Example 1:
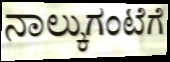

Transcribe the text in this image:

ನಾಲ್ಕುಗಂಟೆಗೆ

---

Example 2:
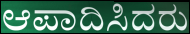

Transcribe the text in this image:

ಆಪಾದಿಸಿದರು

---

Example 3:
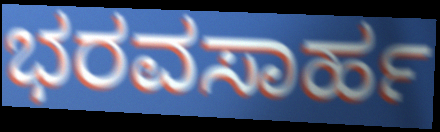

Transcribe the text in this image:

ಭರವಸಾರ್ಹ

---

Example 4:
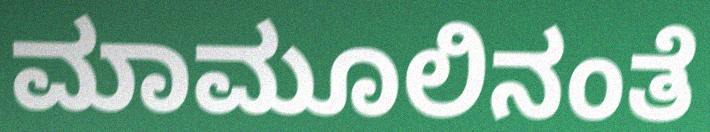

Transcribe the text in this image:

ಮಾಮೂಲಿನಂತೆ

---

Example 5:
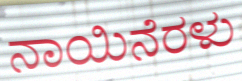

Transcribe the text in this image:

ನಾಯಿನೆರಳು